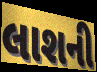
લાશની